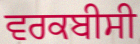
ਵਰਕਬੀਸੀ